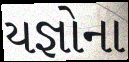
યજ્ઞોના